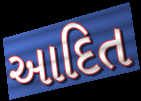
આદિત